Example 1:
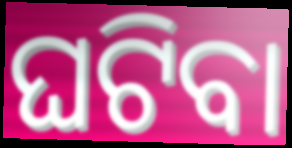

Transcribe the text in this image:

ଘଟିବା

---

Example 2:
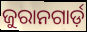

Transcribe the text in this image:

ଜୁରାନଗାର୍ଡ଼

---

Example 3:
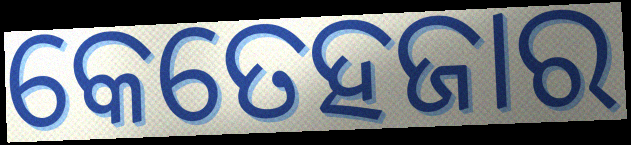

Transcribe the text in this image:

କେତେହଜାର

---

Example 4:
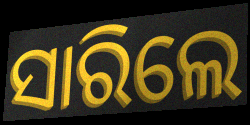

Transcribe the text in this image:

ସାରିଲେ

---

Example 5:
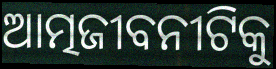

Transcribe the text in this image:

ଆତ୍ମଜୀବନୀଟିକୁ